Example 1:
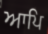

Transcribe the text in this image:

ਆਪਿ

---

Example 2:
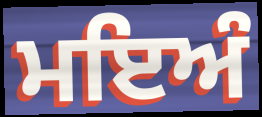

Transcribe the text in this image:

ਮਇਅੰ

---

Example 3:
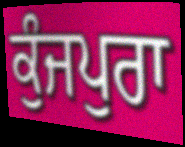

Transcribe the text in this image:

ਕੁੰਜਪੁਰਾ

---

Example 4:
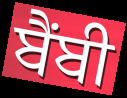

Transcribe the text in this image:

ਬੈਂਬੀ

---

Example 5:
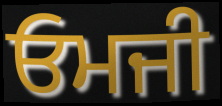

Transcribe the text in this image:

ਓਮਜੀ